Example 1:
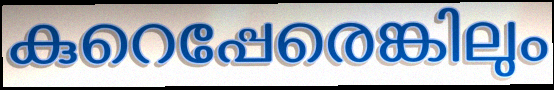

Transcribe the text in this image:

കുറെപ്പേരെങ്കിലും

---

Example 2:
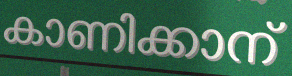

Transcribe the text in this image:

കാണിക്കാന്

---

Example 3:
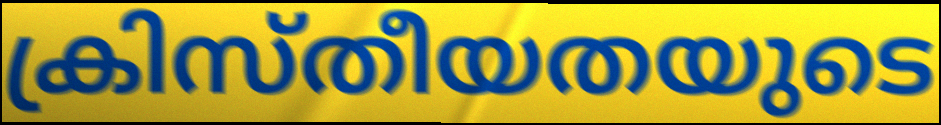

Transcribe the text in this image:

ക്രിസ്തീയതയുടെ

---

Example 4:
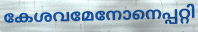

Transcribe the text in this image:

കേശവമേനോനെപ്പറ്റി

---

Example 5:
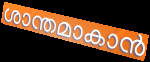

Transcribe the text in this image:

ശാന്തമാകാൻ